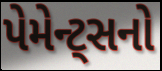
પેમેન્ટ્સનો